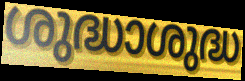
ശുദ്ധാശുദ്ധ